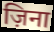
ज़िना